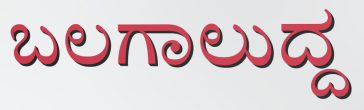
ಬಲಗಾಲುದ್ದ